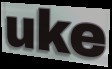
uke